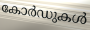
കോർഡുകൾ